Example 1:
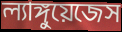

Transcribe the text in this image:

ল্যাঙ্গুয়েজেস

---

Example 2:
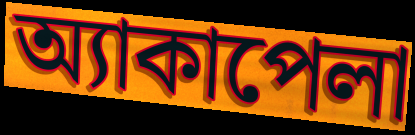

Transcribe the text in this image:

অ্যাকাপেলা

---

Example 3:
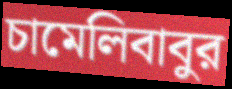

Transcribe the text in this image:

চামেলিবাবুর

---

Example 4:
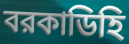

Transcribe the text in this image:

বরকাডিহি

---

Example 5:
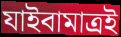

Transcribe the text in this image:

যাইবামাত্রই